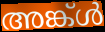
അങ്ക്ൾ